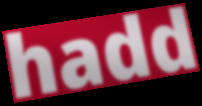
hadd